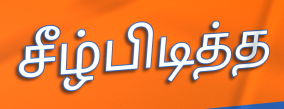
சீழ்பிடித்த